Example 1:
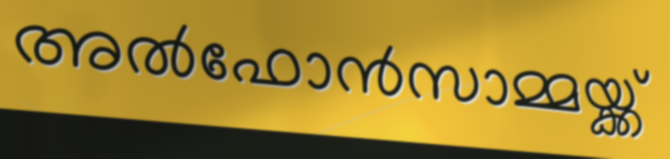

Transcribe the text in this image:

അൽഫോൻസാമ്മയ്ക്ക്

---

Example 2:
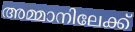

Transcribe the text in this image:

അമ്മാനിലേക്ക്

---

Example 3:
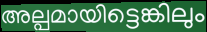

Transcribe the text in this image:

അല്പമായിട്ടെങ്കിലും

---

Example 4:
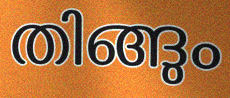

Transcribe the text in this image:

തിങ്ങും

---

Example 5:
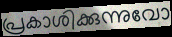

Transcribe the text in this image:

പ്രകാശിക്കുന്നുവോ